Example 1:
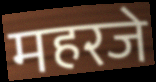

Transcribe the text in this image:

महरजे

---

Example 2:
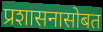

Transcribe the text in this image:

प्रशासनासोबत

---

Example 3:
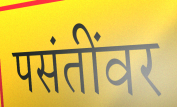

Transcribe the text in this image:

पसंतींवर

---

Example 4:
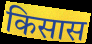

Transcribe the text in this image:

किसास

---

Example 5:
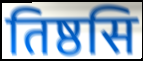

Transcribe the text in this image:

तिष्ठसि